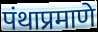
पंथाप्रमाणे